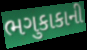
ભગુકાકાની